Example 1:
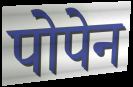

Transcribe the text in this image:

पोपेन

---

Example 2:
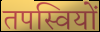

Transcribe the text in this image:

तपस्वियों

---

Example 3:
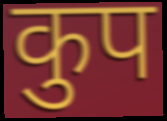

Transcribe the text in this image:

कुप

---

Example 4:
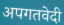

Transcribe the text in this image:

अपगतवेदी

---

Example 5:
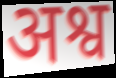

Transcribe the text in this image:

अश्व